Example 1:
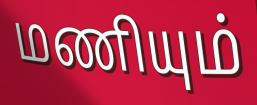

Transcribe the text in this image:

மணியும்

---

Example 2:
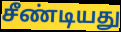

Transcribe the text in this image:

சீண்டியது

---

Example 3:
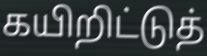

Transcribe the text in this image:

கயிறிட்டுத்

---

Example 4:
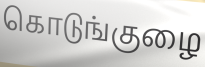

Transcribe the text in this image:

கொடுங்குழை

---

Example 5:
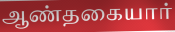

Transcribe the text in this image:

ஆண்தகையார்